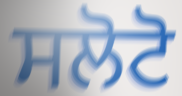
ਸਲੋਟੋ